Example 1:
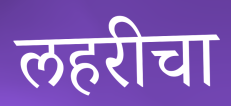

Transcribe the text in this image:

लहरीचा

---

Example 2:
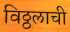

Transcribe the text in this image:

विठ्ठलाची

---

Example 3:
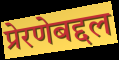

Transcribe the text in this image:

प्रेरणेबद्दल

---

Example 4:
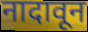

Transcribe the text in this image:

नादावून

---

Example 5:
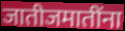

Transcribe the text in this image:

जातीजमातींना